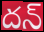
దన్